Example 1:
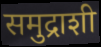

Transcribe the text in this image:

समुद्राशी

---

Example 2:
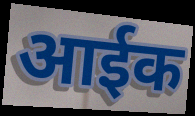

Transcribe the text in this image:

आईक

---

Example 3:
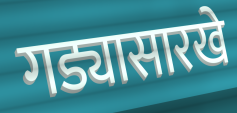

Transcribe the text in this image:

गड्यासारखे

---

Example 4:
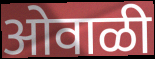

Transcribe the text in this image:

ओवाळी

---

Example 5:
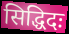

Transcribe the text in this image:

सिद्धिदः